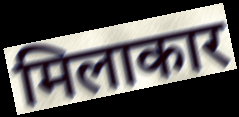
मिलाकार